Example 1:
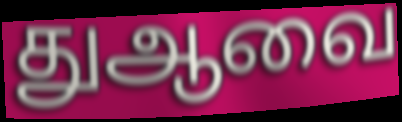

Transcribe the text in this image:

துஆவை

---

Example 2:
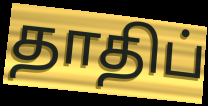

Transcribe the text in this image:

தாதிப்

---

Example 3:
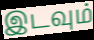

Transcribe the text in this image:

இடவும்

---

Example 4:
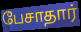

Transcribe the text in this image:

பேசாதார்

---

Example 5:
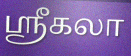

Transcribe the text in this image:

ஶ்ரீகலா